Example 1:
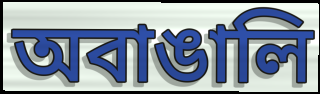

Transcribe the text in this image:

অবাঙালি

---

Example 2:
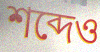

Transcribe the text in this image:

শব্দেও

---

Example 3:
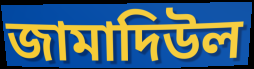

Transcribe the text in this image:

জামাদিউল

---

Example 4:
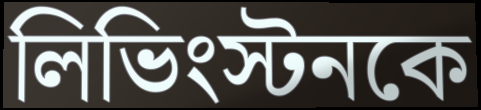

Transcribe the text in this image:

লিভিংস্টনকে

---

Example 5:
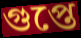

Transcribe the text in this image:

গুপ্তে